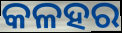
କଳହର